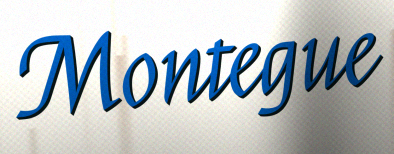
Montegue